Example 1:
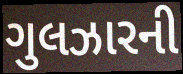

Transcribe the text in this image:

ગુલઝારની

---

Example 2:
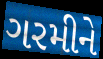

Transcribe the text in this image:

ગરમીને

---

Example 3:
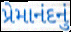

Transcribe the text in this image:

પ્રેમાનંદનું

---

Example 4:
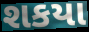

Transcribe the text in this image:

શકયા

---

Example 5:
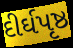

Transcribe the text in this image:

દીર્ઘપૃષ્ઠ